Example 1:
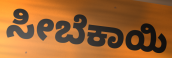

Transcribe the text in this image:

ಸೀಬೆಕಾಯಿ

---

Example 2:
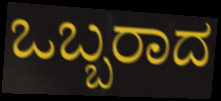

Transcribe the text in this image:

ಒಬ್ಬರಾದ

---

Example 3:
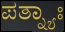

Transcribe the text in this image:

ಪತ್ನ್ಯಾಃ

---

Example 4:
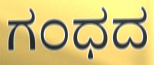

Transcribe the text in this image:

ಗಂಧದ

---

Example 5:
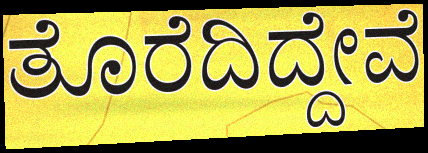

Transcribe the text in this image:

ತೊರೆದಿದ್ದೇವೆ